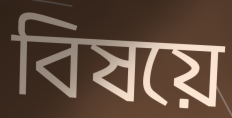
বিষয়ে